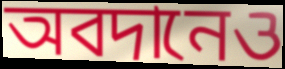
অবদানেও